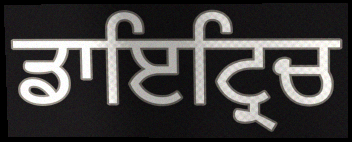
ਡਾਇਟ੍ਰਿਚ